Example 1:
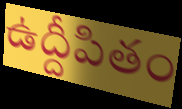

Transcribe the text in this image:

ఉద్దీపితం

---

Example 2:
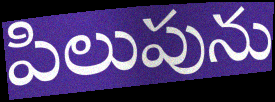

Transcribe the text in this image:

పిలుపును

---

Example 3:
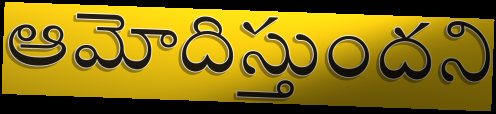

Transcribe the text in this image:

ఆమోదిస్తుందని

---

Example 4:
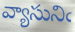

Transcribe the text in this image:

వ్యాసునిఁ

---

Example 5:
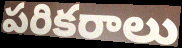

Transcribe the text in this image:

పరికరాలు